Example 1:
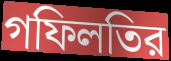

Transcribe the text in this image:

গফিলতির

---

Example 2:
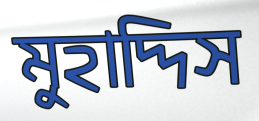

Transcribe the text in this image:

মুহাদ্দিস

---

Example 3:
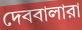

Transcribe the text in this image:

দেববালারা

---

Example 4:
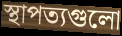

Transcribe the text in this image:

স্থাপত্যগুলো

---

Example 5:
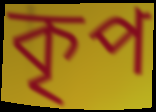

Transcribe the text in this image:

কৃপ